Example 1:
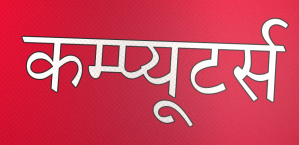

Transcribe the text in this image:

कम्प्यूटर्स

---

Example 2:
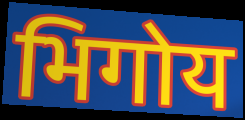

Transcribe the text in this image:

भिगोय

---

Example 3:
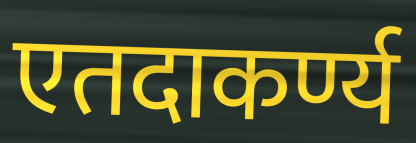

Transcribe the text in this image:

एतदाकर्ण्य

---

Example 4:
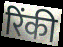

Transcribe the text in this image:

रिंकी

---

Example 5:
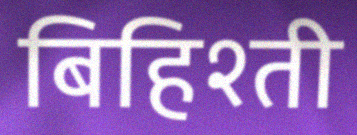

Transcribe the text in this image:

बिहिश्ती